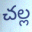
చల్ల